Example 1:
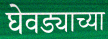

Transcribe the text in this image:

घेवड्याच्या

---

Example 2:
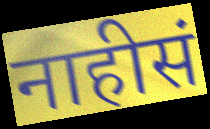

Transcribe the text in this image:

नाहीसं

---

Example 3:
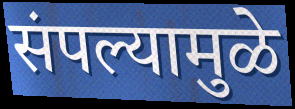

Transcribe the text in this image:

संपल्यामुळे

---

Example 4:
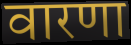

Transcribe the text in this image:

वारणा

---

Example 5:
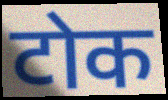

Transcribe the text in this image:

टोक